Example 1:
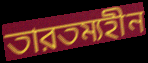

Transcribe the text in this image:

তারতম্যহীন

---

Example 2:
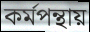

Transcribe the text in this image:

কর্মপন্থায়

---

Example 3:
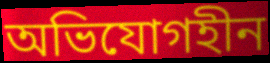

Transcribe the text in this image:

অভিযোগহীন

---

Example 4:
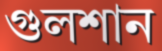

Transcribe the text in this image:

গুলশান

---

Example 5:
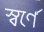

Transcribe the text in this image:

স্বর্ণে